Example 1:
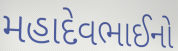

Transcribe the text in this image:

મહાદેવભાઈનો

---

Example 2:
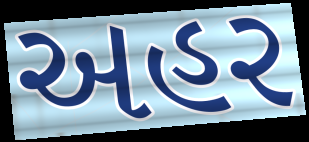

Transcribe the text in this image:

અહર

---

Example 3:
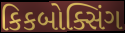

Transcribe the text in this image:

કિકબોક્સિંગ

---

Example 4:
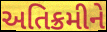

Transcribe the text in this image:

અતિક્રમીને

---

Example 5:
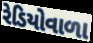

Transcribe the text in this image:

રેડિયોવાળા